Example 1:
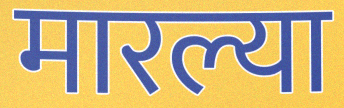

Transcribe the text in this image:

मारल्या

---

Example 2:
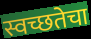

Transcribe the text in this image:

स्वच्छतेचा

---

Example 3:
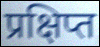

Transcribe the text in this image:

प्रक्षिप्त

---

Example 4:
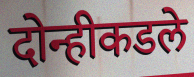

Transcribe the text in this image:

दोन्हीकडले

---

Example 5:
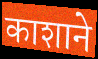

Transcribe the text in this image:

काशाने